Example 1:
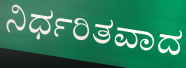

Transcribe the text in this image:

ನಿರ್ಧರಿತವಾದ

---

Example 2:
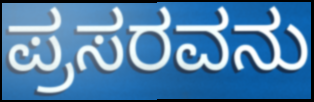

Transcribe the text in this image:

ಪ್ರಸರವನು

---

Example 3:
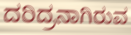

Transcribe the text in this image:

ದರಿದ್ರನಾಗಿರುವ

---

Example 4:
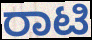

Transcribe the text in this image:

ರಾಟಿ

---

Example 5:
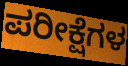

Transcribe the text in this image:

ಪರೀಕ್ಷೆಗಳ